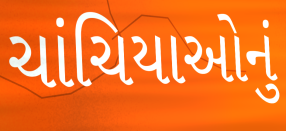
ચાંચિયાઓનું